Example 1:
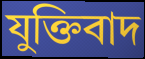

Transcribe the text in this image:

যুক্তিবাদ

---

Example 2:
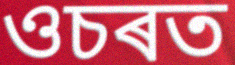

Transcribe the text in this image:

ওচৰত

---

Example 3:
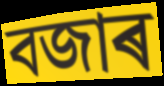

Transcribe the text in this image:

বজাৰ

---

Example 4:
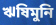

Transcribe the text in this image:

ঋষিমুনি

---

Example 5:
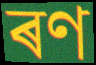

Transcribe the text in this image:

ৰণ